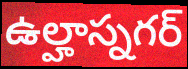
ఉల్హాస్నగర్